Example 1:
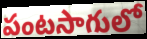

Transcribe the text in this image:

పంటసాగులో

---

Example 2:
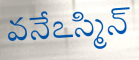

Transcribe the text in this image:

వనేఽస్మిన్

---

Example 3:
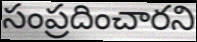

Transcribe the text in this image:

సంప్రదించారని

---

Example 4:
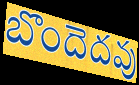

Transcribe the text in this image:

బొందెదవు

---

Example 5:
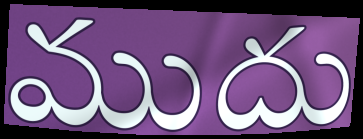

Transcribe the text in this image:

ముదు